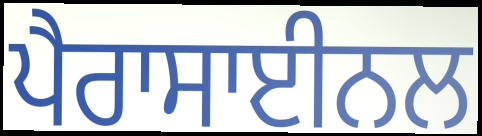
ਪੈਰਾਸਾਈਨਲ